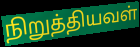
நிறுத்தியவள்